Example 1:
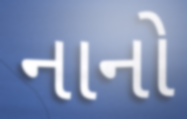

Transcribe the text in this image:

નાનો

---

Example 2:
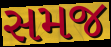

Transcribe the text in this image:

સમજ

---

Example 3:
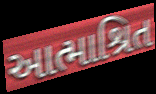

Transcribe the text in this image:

આત્માશ્રિત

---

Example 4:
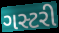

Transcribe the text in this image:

ગસ્ટરી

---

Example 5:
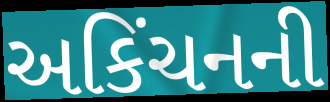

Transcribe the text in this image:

અકિંચનની